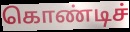
கொண்டிச்